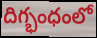
దిగ్భంధంలో